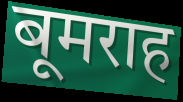
बूमराह